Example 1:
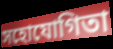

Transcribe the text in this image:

সহোযোগিতা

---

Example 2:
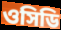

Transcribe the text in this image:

ওসিডি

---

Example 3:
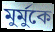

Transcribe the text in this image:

মুর্মুকে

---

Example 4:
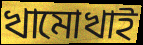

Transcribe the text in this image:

খামোখাই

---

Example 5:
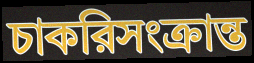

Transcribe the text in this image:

চাকরিসংক্রান্ত